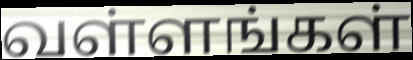
வள்ளங்கள்